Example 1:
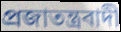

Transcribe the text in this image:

প্রজাতন্ত্রবাদী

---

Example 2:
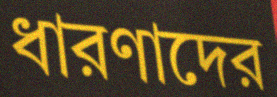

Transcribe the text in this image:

ধারণাদের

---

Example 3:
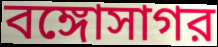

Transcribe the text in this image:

বঙ্গোসাগর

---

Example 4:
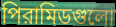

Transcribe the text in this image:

পিরামিডগুলো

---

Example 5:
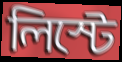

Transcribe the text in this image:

লিস্টে